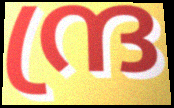
ന്ദ്ര